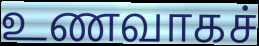
உணவாகச்